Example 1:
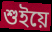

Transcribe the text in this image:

শুইয়ে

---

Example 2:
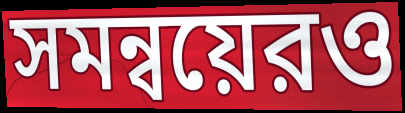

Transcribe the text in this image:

সমন্বয়েরও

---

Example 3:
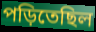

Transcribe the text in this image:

পড়িতেছিল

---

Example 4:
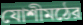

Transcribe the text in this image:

যোশীমঠের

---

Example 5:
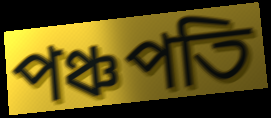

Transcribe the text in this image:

পঞ্চপতি